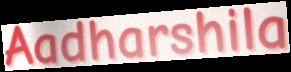
Aadharshila